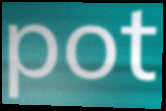
pot